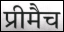
प्रीमैच